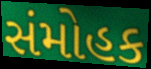
સંમોહક